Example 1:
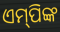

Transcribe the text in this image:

ଏମ୍‌ପିଙ୍କ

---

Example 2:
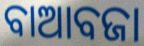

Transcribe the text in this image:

ବାଆବଜା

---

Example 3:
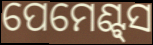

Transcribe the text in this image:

ପେମେଣ୍ଟ୍‌ସ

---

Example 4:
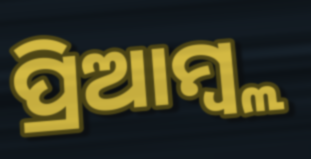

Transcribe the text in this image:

ପ୍ରିଆମ୍ବ୍ଲ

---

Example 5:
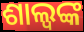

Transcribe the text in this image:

ଶାଲ୍ୱଙ୍କ